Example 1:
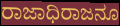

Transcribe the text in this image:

ರಾಜಾಧಿರಾಜನೂ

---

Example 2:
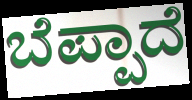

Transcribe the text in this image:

ಬೆಪ್ಪಾದೆ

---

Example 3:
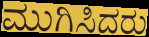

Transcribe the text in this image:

ಮುಗಿಸಿದರು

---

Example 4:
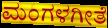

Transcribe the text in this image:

ಮಂಗಳಗೀತೆ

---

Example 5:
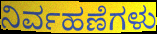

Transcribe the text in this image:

ನಿರ್ವಹಣೆಗಳು